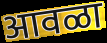
आवळा